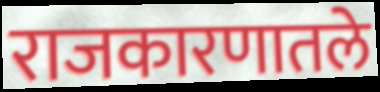
राजकारणातले